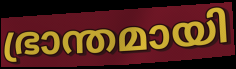
ഭ്രാന്തമായി